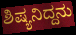
ಶಿಷ್ಯನಿದ್ದನು